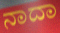
ನಾದಾ